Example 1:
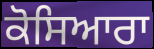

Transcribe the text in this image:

ਕੋਸਿਆਰਾ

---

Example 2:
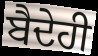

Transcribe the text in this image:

ਬੈਦੇਹੀ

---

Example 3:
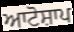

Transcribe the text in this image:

ਆਟੋਸ਼ਾਪ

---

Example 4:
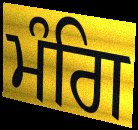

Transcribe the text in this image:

ਮੰਗਿ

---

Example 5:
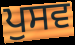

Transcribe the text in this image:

ਪੁਸਵ